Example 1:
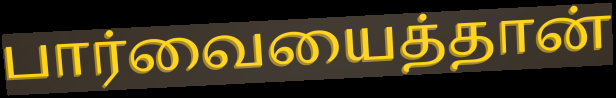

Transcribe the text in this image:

பார்வையைத்தான்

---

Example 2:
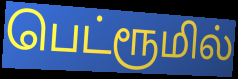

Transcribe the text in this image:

பெட்ரூமில்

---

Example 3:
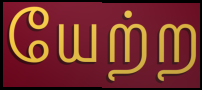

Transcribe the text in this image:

யேற்ற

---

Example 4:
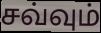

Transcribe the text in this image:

சவ்வும்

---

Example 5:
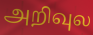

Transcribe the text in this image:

அறிவுல